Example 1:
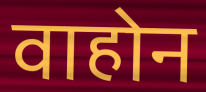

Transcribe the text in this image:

वाहोन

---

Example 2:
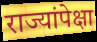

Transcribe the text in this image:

राज्यांपेक्षा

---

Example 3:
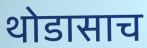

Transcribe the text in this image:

थोडासाच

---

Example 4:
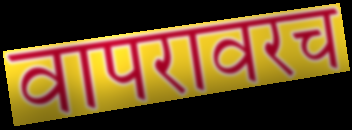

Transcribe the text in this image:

वापरावरच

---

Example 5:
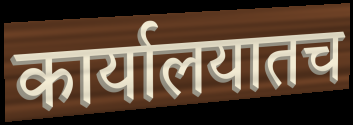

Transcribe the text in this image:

कार्यालयातच